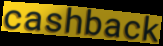
cashback